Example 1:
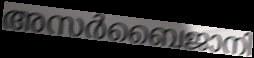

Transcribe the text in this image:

അസർബൈജാനി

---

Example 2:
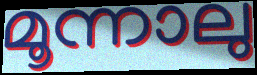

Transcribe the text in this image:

മൂന്നാലു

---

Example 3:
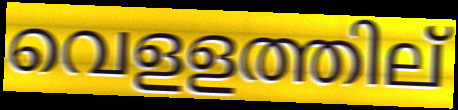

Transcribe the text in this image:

വെളളത്തില്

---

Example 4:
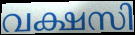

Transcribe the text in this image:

വക്ഷസി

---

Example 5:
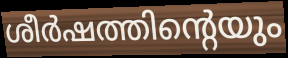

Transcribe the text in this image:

ശീർഷത്തിന്റെയും